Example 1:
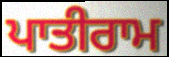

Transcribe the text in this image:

ਪਾਤੀਰਾਮ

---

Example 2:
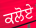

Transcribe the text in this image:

ਕਲੋਏ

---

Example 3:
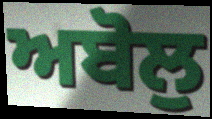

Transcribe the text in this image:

ਅਬੋਲੁ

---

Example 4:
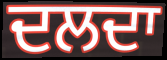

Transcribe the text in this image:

ਦਲਦਾ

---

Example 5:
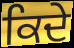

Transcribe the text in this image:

ਕਿਦੇ